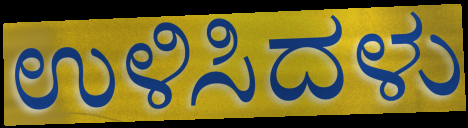
ಉಳಿಸಿದಳು